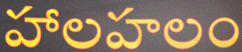
హాలహలం